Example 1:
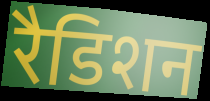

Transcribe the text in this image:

रैडिशन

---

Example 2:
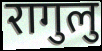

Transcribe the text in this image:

रागुलु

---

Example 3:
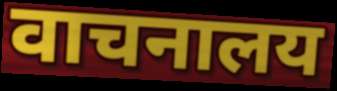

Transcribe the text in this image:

वाचनालय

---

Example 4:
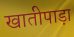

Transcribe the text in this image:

खातीपाड़ा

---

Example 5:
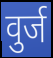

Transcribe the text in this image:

वुर्ज